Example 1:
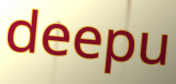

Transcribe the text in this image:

deepu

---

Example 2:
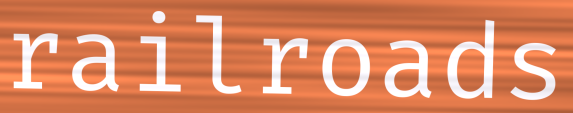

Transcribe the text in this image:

railroads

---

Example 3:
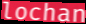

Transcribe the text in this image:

lochan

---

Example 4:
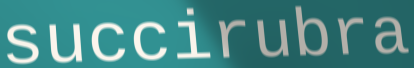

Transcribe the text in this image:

succirubra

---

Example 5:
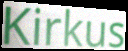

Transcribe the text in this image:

Kirkus